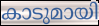
കാടുമായി